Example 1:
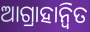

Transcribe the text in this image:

ଆଗ୍ରାହାନ୍ୱିତ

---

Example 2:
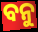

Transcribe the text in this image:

ବନୁ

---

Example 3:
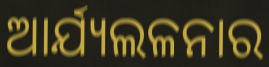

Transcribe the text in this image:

ଆର୍ଯ୍ୟଲଳନାର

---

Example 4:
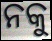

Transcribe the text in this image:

ନକୁ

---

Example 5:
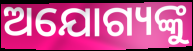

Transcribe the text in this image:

ଅଯୋଗ୍ୟଙ୍କୁ